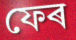
ফেৰ